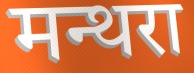
मन्थरा